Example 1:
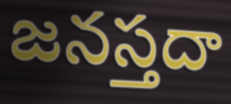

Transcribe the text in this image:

జనస్తదా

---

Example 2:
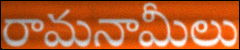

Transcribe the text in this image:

రామనామీలు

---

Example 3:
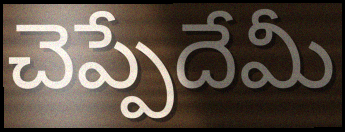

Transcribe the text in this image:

చెప్పేదేమీ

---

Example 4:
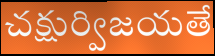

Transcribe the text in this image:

చక్షుర్విజయతే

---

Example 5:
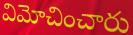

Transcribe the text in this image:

విమోచించారు